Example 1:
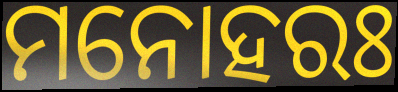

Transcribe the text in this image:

ମନୋହରଃ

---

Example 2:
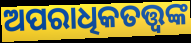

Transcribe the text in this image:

ଅପରାଧିକତତ୍ତ୍ୱଙ୍କ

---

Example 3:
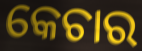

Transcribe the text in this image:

କେଚାର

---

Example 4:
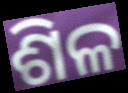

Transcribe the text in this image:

ଶିଳ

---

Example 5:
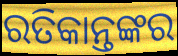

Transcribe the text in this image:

ରତିକାନ୍ତଙ୍କର